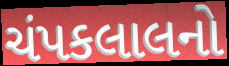
ચંપકલાલનો